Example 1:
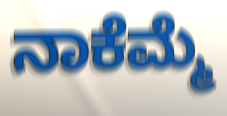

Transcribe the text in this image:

ನಾಕೆಮ್ಮೆ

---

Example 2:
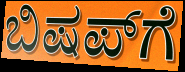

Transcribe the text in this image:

ಬಿಷಪ್‌ಗೆ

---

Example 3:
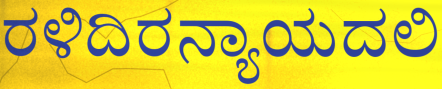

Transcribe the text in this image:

ರಳಿದಿರನ್ಯಾಯದಲಿ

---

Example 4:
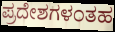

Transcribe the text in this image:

ಪ್ರದೇಶಗಳಂತಹ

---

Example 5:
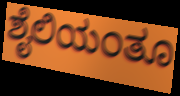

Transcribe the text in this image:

ಶೈಲಿಯಂತೂ